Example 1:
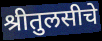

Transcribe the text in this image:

श्रीतुलसीचे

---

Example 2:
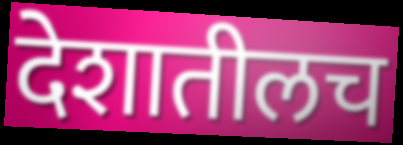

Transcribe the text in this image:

देशातीलच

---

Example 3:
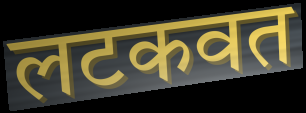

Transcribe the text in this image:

लटकवत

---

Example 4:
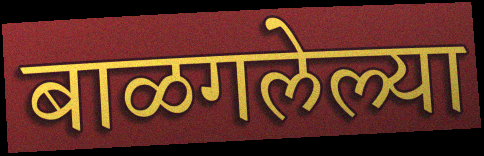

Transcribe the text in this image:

बाळगलेल्या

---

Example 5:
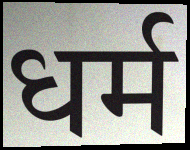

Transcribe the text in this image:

धर्म